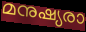
മനുഷ്യരാ